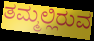
ತಮ್ಮಲ್ಲಿರುವ